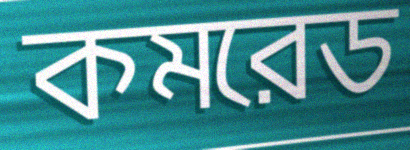
কমরেড